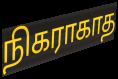
நிகராகாத